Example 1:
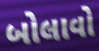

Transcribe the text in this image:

બોલાવો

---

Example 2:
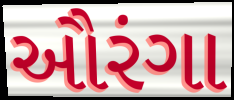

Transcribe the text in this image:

ઔરંગા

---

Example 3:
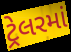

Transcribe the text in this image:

ટ્રેલરમાં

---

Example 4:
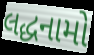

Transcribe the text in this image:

લદ્ધનામો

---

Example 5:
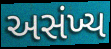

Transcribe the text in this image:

અસંખ્ય